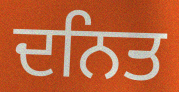
ਦਨਿਤ